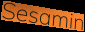
Sesamin